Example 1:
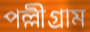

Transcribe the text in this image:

পল্লীগ্রাম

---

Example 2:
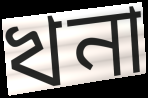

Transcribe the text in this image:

খনা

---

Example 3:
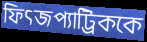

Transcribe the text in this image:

ফিৎজপ্যাট্রিককে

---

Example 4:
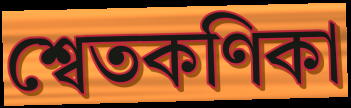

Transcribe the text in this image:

শ্বেতকণিকা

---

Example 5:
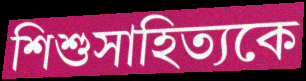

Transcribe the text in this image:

শিশুসাহিত্যকে